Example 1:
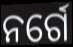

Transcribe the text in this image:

ନର୍ଗେ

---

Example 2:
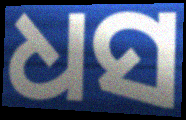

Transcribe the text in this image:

ଧସ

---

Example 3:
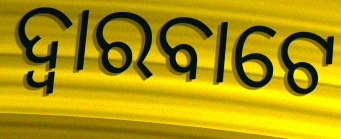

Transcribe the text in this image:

ଦ୍ୱାରବାଟେ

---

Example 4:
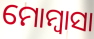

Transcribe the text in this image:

ମୋମ୍ବାସା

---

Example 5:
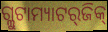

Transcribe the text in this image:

ଗ୍ଲୁଟାମ୍ୟାଟର୍‌ଜିକ୍